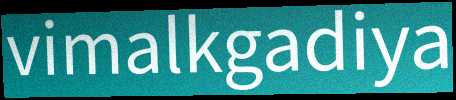
vimalkgadiya